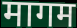
मागम